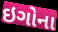
ઇગોના